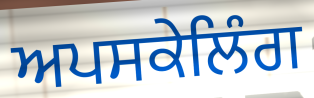
ਅਪਸਕੇਲਿੰਗ